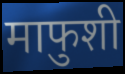
माफुशी